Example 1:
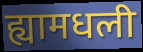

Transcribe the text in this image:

ह्यामधली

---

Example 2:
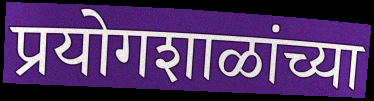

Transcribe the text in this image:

प्रयोगशाळांच्या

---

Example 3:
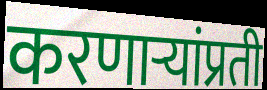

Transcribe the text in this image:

करणाऱ्यांप्रती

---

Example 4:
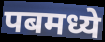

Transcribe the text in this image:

पबमध्ये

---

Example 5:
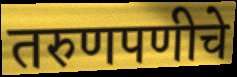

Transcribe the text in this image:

तरुणपणीचे